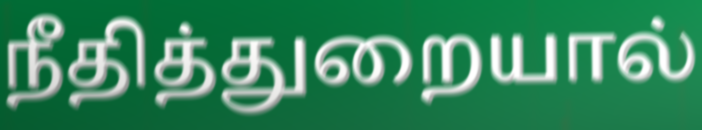
நீதித்துறையால்